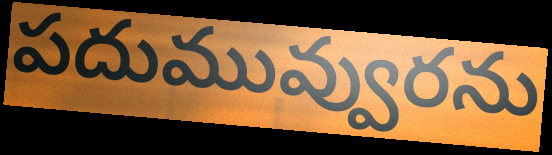
పదుమువ్వురను